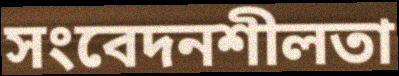
সংবেদনশীলতা